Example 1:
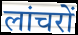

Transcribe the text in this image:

लांचरों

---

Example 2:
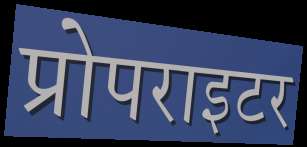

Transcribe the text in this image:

प्रोपराइटर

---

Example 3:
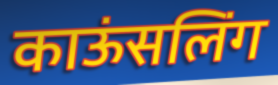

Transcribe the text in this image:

काऊंसलिंग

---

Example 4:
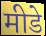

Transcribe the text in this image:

मीडे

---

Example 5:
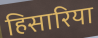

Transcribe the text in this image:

हिसारिया